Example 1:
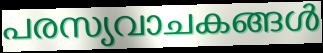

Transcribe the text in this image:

പരസ്യവാചകങ്ങൾ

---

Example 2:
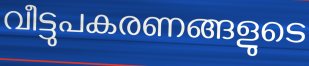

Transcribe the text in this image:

വീട്ടുപകരണങ്ങളുടെ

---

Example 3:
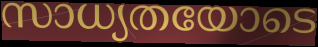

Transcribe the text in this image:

സാധ്യതയോടെ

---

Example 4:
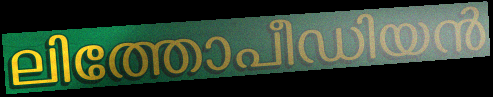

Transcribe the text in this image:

ലിത്തോപീഡിയൻ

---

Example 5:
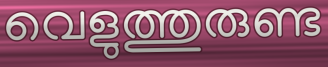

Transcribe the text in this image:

വെളുത്തുരുണ്ട